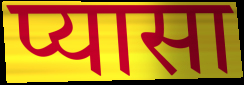
प्यासा